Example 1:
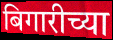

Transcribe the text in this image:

बिगारीच्या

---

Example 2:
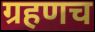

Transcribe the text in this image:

ग्रहणच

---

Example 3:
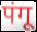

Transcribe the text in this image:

पंगू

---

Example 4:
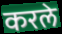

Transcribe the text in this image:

करले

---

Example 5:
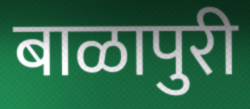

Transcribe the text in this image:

बाळापुरी